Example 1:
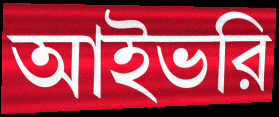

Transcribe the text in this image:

আইভরি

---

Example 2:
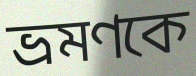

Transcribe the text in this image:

ভ্রমণকে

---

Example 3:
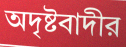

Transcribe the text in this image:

অদৃষ্টবাদীর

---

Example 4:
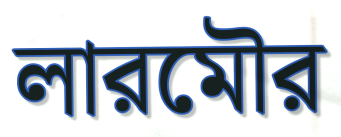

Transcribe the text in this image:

লারমৌর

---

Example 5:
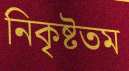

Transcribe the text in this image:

নিকৃষ্টতম